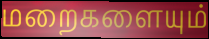
மறைகளையும்